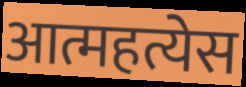
आत्महत्येस